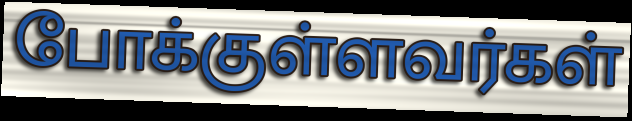
போக்குள்ளவர்கள்